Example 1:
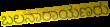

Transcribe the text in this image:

ಬಲನಾರಾಯಣರು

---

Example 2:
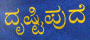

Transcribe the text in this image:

ದೃಷ್ಟಿಪುದೆ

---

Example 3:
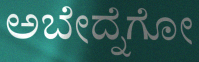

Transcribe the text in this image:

ಅಬೇದ್ನೆಗೋ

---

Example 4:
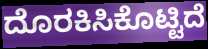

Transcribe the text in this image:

ದೊರಕಿಸಿಕೊಟ್ಟಿದೆ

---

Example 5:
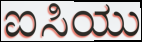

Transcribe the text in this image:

ಐಸಿಯು